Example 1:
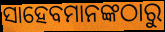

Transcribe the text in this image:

ସାହେବମାନଙ୍କଠାରୁ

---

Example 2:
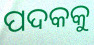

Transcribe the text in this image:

ପଦକକୁ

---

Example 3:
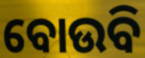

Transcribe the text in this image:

ବୋଉବି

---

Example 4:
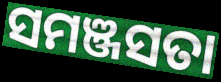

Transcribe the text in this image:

ସମଞ୍ଜସତା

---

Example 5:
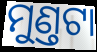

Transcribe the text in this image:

ମୁଣ୍ତଟା